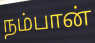
நம்பான்